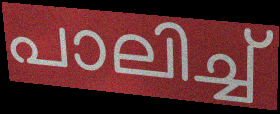
പാലിച്ച്